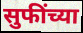
सुफींच्या